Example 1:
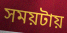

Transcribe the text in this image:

সময়টায়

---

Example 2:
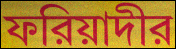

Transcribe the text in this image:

ফরিয়াদীর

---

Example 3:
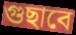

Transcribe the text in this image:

গুছাবে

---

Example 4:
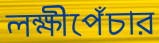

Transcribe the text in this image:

লক্ষীপেঁচার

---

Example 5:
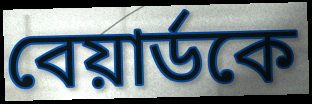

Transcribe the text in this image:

বেয়ার্ডকে